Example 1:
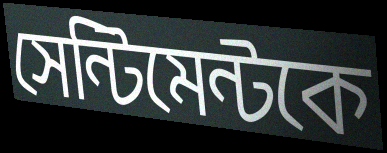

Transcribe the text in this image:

সেন্টিমেন্টকে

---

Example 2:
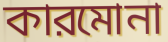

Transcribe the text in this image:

কারমোনা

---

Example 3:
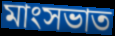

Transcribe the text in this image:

মাংসভাত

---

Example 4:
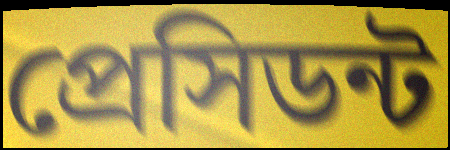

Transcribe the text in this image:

প্রেসিডন্ট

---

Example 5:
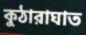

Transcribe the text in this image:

কুঠারাঘাত